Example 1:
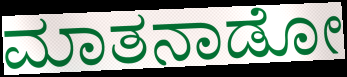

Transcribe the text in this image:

ಮಾತನಾಡೋ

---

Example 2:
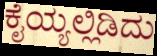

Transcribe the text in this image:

ಕೈಯ್ಯಲ್ಲಿಡಿದು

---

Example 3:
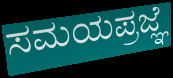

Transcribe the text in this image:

ಸಮಯಪ್ರಜ್ಞೆ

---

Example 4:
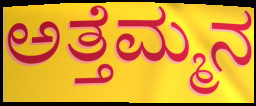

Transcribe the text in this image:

ಅತ್ತೆಮ್ಮನ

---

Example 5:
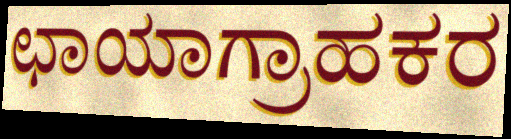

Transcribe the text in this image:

ಛಾಯಾಗ್ರಾಹಕರ